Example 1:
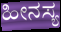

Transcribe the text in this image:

ಹೀನಸ್ಯ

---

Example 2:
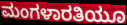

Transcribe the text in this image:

ಮಂಗಳಾರತಿಯೂ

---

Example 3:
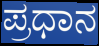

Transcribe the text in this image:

ಪ್ರಧಾನ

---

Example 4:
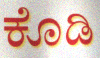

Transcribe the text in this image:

ಕೊಡಿ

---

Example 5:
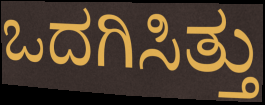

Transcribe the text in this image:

ಒದಗಿಸಿತ್ತು